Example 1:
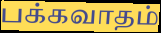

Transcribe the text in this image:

பக்கவாதம்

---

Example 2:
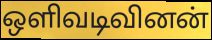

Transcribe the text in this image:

ஒளிவடிவினன்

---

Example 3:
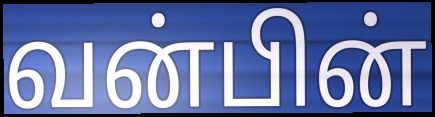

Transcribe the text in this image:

வன்பின்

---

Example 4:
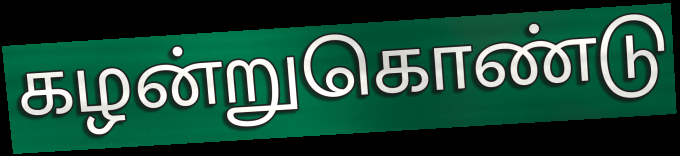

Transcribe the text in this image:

கழன்றுகொண்டு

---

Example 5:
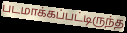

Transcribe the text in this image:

படமாக்கப்பட்டிருந்த